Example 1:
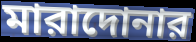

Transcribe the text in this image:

মারাদোনার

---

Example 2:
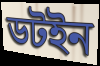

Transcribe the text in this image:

ডটইন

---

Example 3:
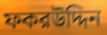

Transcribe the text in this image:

ফকরউদ্দিন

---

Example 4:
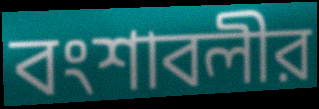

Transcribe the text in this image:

বংশাবলীর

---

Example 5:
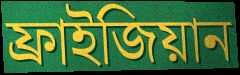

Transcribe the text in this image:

ফ্রাইজিয়ান